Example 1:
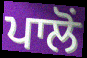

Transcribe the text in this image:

ਪਾਲੋਂ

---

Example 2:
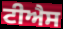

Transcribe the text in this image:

ਟੀਐਸ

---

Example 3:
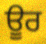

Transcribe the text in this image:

ਊਰ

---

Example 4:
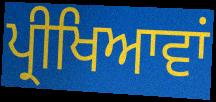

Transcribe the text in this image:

ਪ੍ਰੀਖਿਆਵਾਂ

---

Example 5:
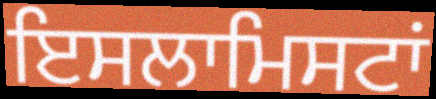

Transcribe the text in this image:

ਇਸਲਾਮਿਸਟਾਂ